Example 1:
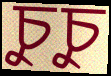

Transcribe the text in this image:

চুচু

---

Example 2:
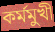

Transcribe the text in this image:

কর্মমুখী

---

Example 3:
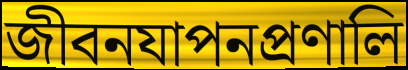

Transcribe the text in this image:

জীবনযাপনপ্রণালি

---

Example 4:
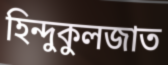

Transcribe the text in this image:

হিন্দুকুলজাত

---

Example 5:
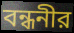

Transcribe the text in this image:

বন্ধনীর